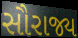
સૌરાજ્ય